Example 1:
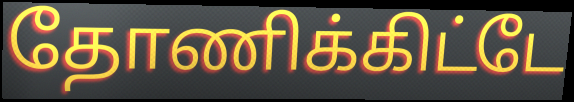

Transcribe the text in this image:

தோணிக்கிட்டே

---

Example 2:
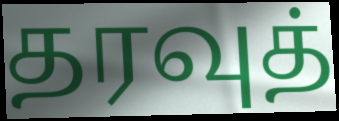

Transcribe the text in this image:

தரவுத்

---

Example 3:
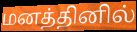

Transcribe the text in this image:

மனத்தினில்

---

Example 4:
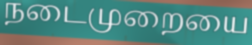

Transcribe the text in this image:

நடைமுறையை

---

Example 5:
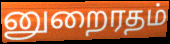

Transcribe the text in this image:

னுறைரதம்